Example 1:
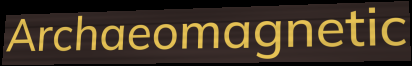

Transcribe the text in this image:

Archaeomagnetic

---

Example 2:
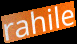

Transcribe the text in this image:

rahile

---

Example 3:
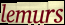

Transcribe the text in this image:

lemurs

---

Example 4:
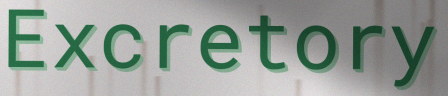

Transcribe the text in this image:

Excretory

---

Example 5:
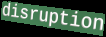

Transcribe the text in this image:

disruption